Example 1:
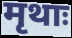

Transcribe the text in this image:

मृथाः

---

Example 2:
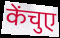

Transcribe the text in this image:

केंचुए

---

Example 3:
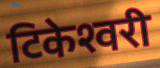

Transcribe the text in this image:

टिकेश्वरी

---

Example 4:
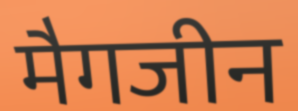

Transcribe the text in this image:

मैगजीन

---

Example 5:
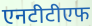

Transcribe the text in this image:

एनटीटीएफ